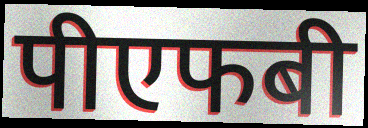
पीएफबी